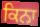
ਕਿਨਾ